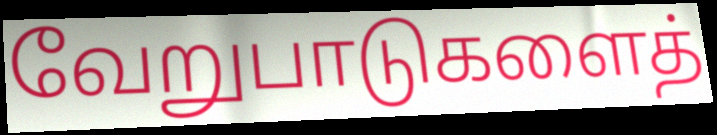
வேறுபாடுகளைத்